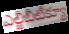
ఎల్జీబీటీక్యూ